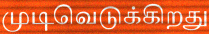
முடிவெடுக்கிறது